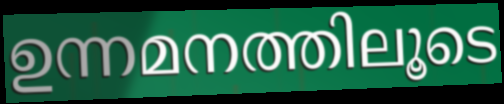
ഉന്നമനത്തിലൂടെ